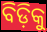
ବିଡ଼ିକୁ